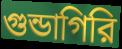
গুন্ডাগিরি